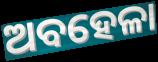
ଅବହେଳା